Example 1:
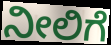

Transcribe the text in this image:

ನೀಲಿಗೆ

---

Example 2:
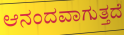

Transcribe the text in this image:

ಆನಂದವಾಗುತ್ತದೆ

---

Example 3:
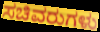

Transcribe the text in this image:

ಸಚಿವರುಗಳು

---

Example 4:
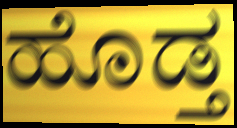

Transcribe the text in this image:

ಹೊಡ್ತ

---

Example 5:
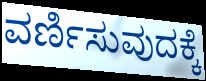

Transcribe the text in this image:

ವರ್ಣಿಸುವುದಕ್ಕೆ